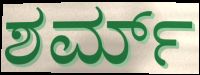
ಶರ್ಮ್